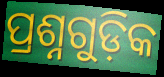
ପ୍ରଶ୍ନଗୁଡ଼ିକ